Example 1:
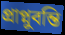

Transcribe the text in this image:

প্রাপ্নুবন্তি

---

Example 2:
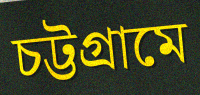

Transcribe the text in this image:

চট্টগ্রামে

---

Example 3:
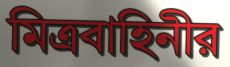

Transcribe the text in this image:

মিত্রবাহিনীর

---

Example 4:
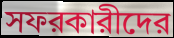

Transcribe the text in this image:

সফরকারীদের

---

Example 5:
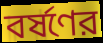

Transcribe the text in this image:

বর্ষণের